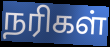
நரிகள்